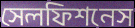
সেলফিশনেস